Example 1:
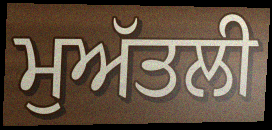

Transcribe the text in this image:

ਮੁਅੱਤਲੀ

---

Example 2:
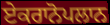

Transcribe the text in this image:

ਏਕਰਾਨੋਪਲਾਨ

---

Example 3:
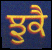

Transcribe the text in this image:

ਝੁਕੈ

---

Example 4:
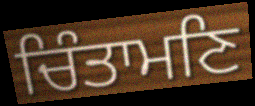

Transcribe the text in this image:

ਚਿੰਤਾਮਣਿ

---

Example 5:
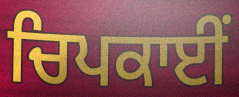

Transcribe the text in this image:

ਚਿਪਕਾਈਂ